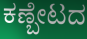
ಕಣ್ಬೇಟದ